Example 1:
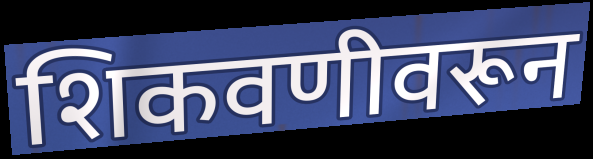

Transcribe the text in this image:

शिकवणीवरून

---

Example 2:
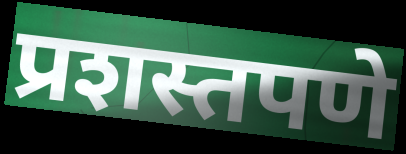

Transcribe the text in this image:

प्रशस्तपणे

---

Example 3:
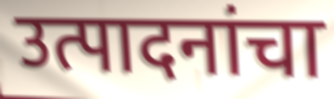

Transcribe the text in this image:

उत्पादनांचा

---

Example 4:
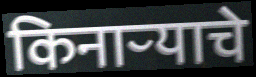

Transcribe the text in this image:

किनाऱ्याचे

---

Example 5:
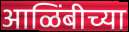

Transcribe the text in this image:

आळिंबीच्या